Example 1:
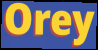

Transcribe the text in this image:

Orey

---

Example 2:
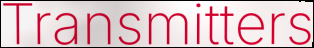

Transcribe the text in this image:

Transmitters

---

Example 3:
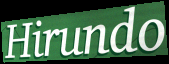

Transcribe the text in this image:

Hirundo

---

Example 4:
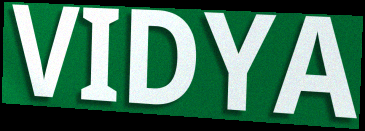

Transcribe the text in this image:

VIDYA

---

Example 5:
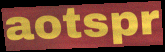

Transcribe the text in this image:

aotspr